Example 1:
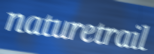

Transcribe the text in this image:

naturetrail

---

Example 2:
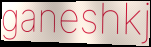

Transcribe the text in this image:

ganeshkj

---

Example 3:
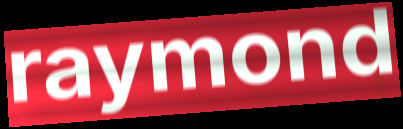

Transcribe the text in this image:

raymond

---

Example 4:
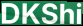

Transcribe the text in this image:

DKShi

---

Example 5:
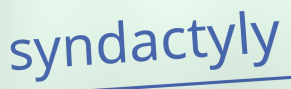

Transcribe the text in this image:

syndactyly